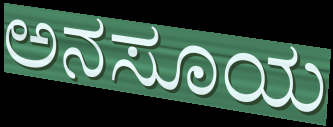
ಅನಸೂಯ